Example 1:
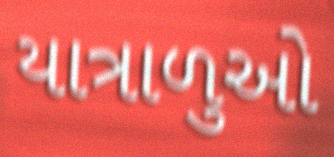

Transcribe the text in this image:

યાત્રાળુઓ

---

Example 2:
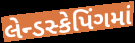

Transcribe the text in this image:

લેન્ડસ્કેપિંગમાં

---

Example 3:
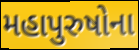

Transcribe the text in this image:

મહાપુરુષોના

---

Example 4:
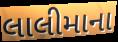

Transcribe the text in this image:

લાલીમાના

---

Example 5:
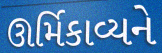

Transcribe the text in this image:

ઊર્મિકાવ્યને